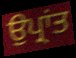
ਉਪ੍ਰਾਂਤ